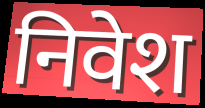
निवेश